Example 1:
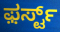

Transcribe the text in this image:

ಫ಼ರ್ಸ್ಟ್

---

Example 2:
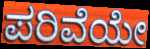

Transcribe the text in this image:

ಪರಿವೆಯೇ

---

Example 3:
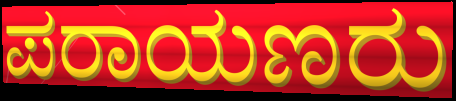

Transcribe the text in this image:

ಪರಾಯಣರು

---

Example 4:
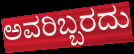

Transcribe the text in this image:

ಅವರಿಬ್ಬರದು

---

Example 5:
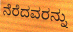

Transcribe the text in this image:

ನೆರೆದವರನ್ನು